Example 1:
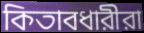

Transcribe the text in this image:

কিতাবধারীরা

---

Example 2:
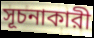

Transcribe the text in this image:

সূচনাকারী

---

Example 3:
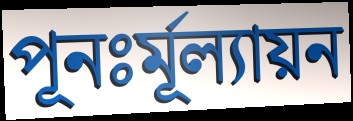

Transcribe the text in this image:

পূনঃর্মূল্যায়ন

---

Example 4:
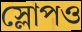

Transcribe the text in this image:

স্লোপও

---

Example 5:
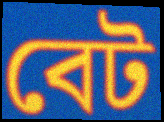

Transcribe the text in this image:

বেট